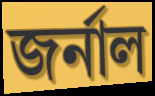
জৰ্নাল